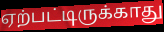
ஏற்பட்டிருக்காது